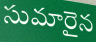
సుమారైన